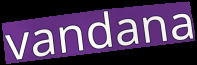
vandana